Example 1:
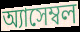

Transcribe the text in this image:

অ্যাসেম্বল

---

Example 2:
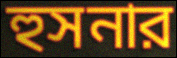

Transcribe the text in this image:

হুসনার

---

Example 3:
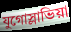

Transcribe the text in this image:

যুগোস্লাভিয়া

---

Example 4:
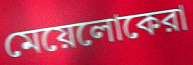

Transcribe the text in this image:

মেয়েলোকেরা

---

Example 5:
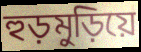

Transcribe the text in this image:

হুড়মুড়িয়ে